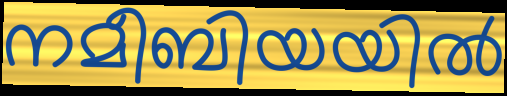
നമീബിയയിൽ